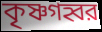
কৃষ্ণগহ্বর